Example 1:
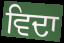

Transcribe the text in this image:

ਵਿਦਾ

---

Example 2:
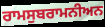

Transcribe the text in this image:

ਰਾਮਸੁਬਰਾਮਨੀਅਨ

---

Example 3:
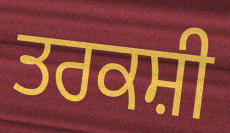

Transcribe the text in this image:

ਤਰਕਸ਼ੀ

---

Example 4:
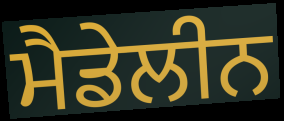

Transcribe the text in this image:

ਮੈਡੇਲੀਨ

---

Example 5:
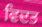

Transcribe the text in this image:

ਵਿਦਤ